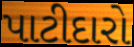
પાટીદારો